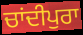
ਚਾਂਦੀਪੁਰਾ